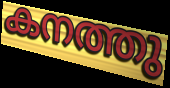
കനത്തു